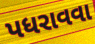
પધરાવવા